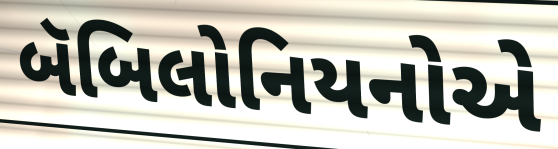
બૅબિલોનિયનોએ